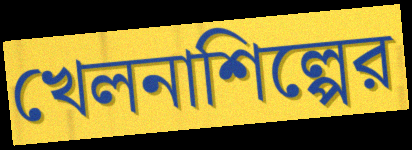
খেলনাশিল্পের